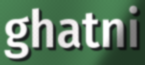
ghatni